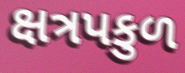
ક્ષત્રપકુળ